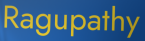
Ragupathy